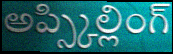
అప్స్కిల్లింగ్